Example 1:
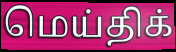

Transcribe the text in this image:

மெய்திக்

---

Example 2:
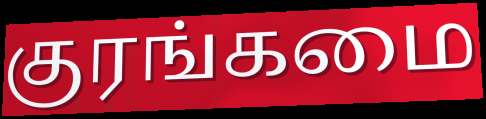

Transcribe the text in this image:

குரங்கமை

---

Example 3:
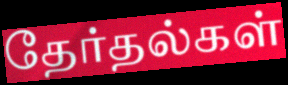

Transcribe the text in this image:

தேர்தல்கள்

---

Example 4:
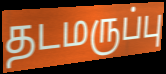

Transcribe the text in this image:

தடமருப்பு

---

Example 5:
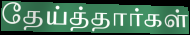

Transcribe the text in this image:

தேய்த்தார்கள்